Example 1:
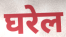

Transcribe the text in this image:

घरेल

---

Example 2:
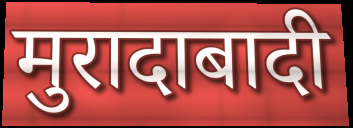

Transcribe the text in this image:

मुरादाबादी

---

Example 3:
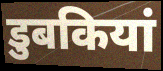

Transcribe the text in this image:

डुबकियां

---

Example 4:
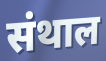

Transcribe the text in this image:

संथाल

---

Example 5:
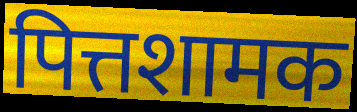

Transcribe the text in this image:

पित्तशामक